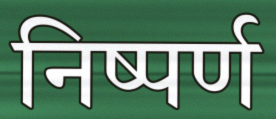
निष्पर्ण